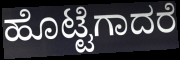
ಹೊಟ್ಟೆಗಾದರೆ